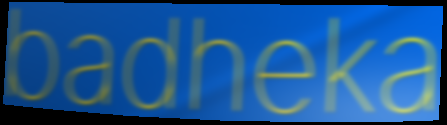
badheka